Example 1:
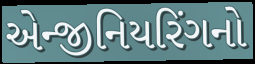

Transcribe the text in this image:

એન્જીનિયરિંગનો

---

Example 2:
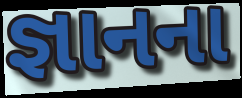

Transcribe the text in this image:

જ્ઞાનના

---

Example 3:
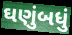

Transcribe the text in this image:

ઘણુંબધું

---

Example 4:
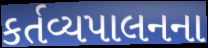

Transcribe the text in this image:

કર્તવ્યપાલનના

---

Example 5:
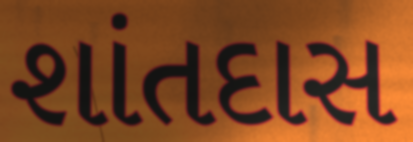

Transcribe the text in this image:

શાંતદાસ